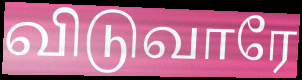
விடுவாரே